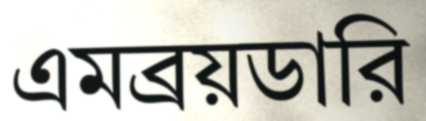
এমব্রয়ডারি